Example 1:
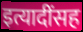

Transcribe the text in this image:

इत्यादींसह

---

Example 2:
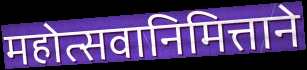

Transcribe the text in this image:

महोत्सवानिमित्ताने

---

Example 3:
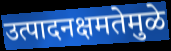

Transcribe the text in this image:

उत्पादनक्षमतेमुळे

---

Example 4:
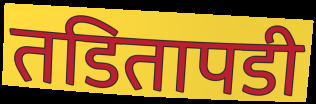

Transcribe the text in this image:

तडितापडी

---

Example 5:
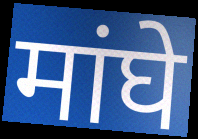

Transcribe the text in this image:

मांघे